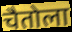
चैतोला